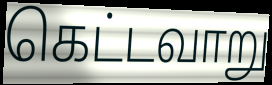
கெட்டவாறு